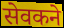
सेवकने